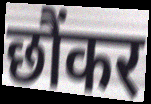
छौंकर